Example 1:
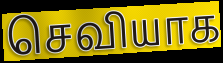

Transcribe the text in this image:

செவியாக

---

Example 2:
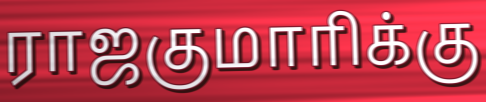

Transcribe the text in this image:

ராஜகுமாரிக்கு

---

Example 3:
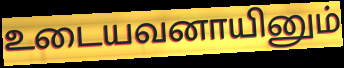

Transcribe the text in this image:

உடையவனாயினும்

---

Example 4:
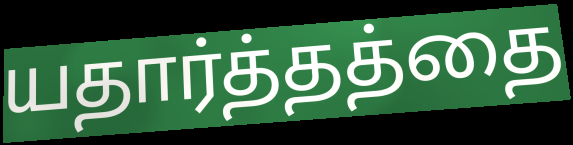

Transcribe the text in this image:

யதார்த்தத்தை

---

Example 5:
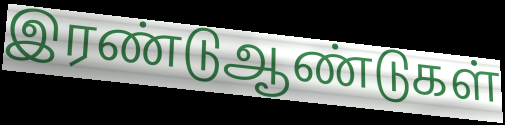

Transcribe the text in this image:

இரண்டுஆண்டுகள்